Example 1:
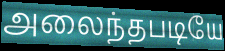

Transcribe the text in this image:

அலைந்தபடியே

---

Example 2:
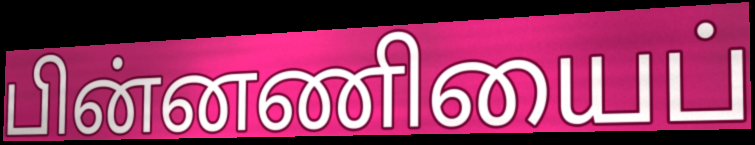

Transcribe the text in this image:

பின்னணியைப்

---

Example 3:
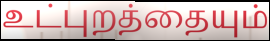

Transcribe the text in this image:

உட்புறத்தையும்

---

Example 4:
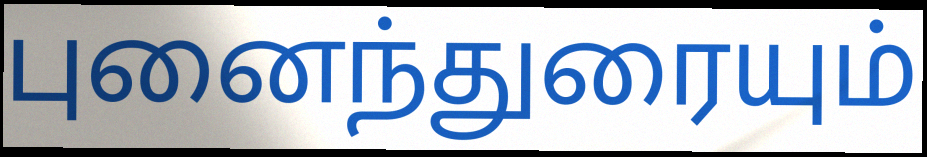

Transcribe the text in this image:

புனைந்துரையும்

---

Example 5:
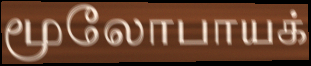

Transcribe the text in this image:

மூலோபாயக்